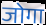
जोगा